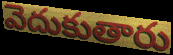
వెదుకుతారు